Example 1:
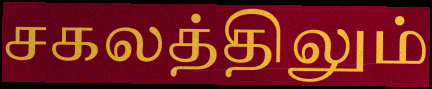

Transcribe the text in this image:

சகலத்திலும்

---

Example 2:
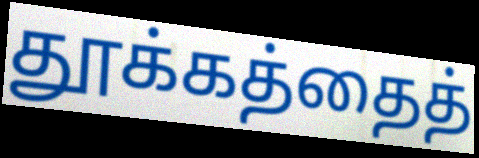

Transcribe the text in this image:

தூக்கத்தைத்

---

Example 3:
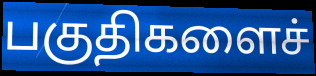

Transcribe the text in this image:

பகுதிகளைச்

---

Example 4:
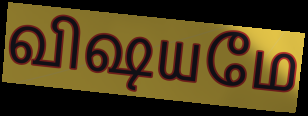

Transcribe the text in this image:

விஷயமே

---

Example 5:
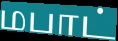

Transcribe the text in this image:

மபாட்